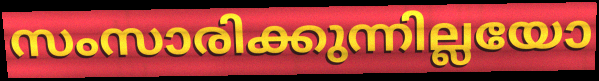
സംസാരിക്കുന്നില്ലയോ